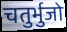
चतुर्भुजो